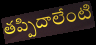
తప్పిదాలేంటి